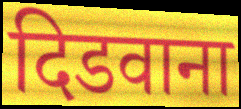
दिडवाना